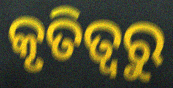
କୃତିତ୍ଵରୁ